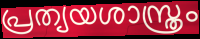
പ്രത്യയശാസ്ത്രം